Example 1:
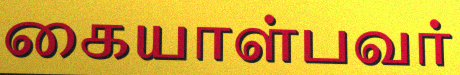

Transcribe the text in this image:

கையாள்பவர்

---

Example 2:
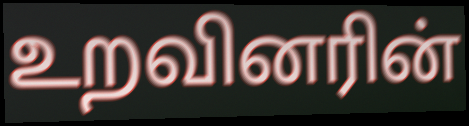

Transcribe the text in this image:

உறவினரின்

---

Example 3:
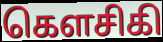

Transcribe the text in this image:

கௌசிகி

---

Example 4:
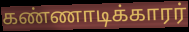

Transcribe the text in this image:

கண்ணாடிக்காரர்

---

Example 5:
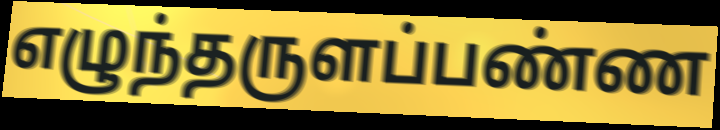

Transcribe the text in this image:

எழுந்தருளப்பண்ண